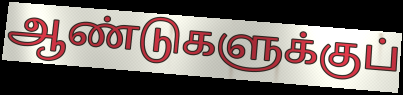
ஆண்டுகளுக்குப்